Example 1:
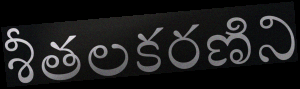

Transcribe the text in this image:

శీతలకరణిని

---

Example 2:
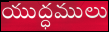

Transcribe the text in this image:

యుద్ధములు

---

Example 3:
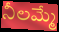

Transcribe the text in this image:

నీలమ్మే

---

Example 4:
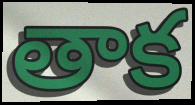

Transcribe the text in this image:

తాక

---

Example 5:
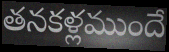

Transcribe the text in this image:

తనకళ్లముందే